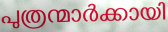
പുത്രന്മാർക്കായി